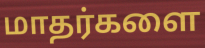
மாதர்களை